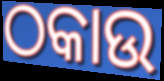
ଠକାଉ